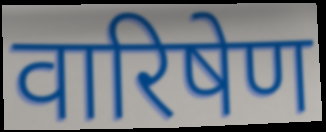
वारिषेण